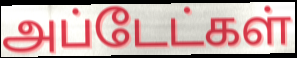
அப்டேட்கள்